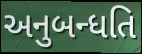
અનુબન્ધતિ